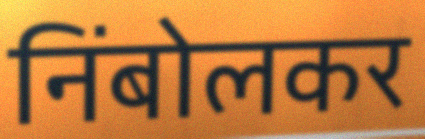
निंबोलकर